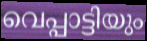
വെപ്പാട്ടിയും